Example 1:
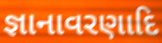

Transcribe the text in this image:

જ્ઞાનાવરણાદિ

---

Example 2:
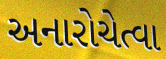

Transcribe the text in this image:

અનારોચેત્વા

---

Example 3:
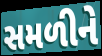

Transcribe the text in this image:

સમળીને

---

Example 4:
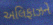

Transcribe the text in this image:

અલિફાઝને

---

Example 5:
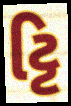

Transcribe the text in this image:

ટ્ટિ